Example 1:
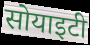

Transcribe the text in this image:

सोयाइटी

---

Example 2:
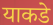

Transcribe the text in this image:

याकडे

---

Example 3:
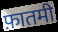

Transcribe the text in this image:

फ़ातमी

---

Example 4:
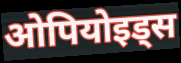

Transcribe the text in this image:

ओपियोइड्स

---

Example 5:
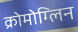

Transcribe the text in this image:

क्रोमोग्लिन